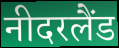
नीदरलैंड